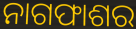
ନାଗଫାଶର